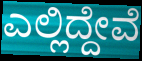
ಎಲ್ಲಿದ್ದೇವೆ